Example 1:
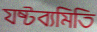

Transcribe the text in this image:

যষ্টব্যমিতি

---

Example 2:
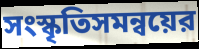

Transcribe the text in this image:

সংস্কৃতিসমন্বয়ের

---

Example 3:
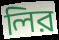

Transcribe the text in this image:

লির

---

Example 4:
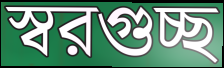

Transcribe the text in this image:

স্বরগুচ্ছ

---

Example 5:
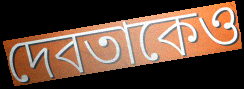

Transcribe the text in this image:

দেবতাকেও